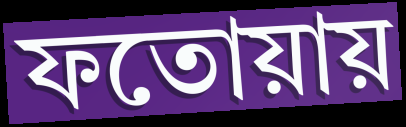
ফতোয়ায়